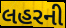
લહરની